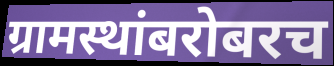
ग्रामस्थांबरोबरच